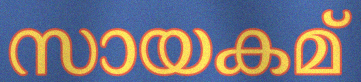
സായകമ്